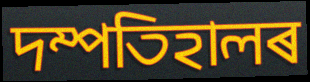
দম্পতিহালৰ